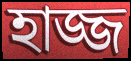
হাজ্জ